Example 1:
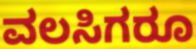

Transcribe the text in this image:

ವಲಸಿಗರೂ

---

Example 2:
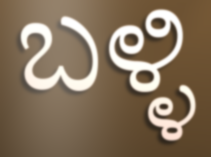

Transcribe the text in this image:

ಬಳ್ಳಿ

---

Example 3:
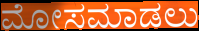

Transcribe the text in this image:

ಮೋಸಮಾಡಲು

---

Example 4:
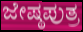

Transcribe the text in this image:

ಜೇಷ್ಠಪುತ್ರ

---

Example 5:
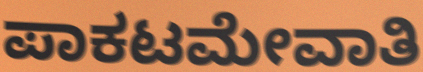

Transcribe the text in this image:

ಪಾಕಟಮೇವಾತಿ